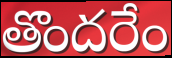
తొందరేం